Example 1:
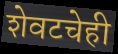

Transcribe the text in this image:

शेवटचेही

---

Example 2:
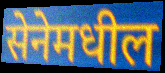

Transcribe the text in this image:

सेनेमधील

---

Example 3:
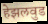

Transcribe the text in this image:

हेझलवुड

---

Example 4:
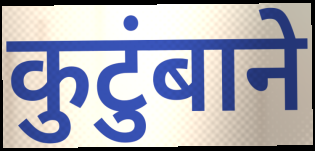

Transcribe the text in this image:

कुटुंबाने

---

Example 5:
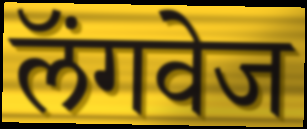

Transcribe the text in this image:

लॅंगवेज